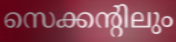
സെക്കന്റിലും